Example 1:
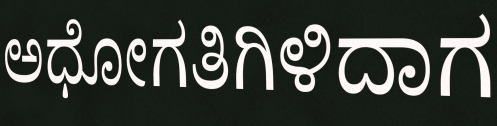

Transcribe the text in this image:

ಅಧೋಗತಿಗಿಳಿದಾಗ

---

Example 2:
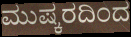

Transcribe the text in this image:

ಮುಷ್ಕರದಿಂದ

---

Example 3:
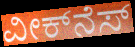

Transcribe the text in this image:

ವೀಕ್‌ನೆಸ್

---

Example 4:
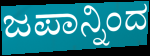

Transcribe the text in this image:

ಜಪಾನ್ನಿಂದ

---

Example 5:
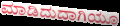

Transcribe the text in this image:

ಮಾಡಿದುದಾಗಿಯೂ